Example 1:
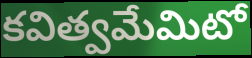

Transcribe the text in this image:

కవిత్వమేమిటో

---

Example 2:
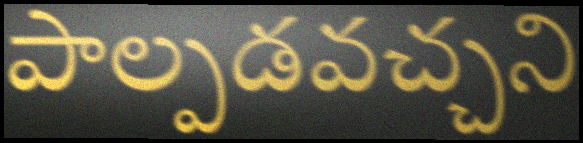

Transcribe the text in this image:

పాల్పడవచ్చని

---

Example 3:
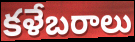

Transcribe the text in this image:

కళేబరాలు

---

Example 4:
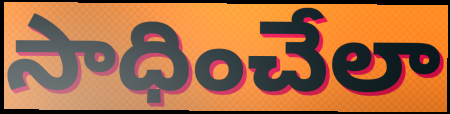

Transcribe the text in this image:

సాధించేలా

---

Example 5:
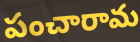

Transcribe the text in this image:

పంచారామ